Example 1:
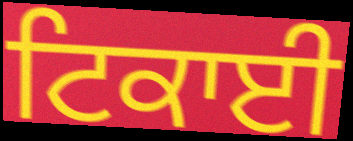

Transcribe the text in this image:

ਟਿਕਾਈ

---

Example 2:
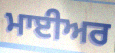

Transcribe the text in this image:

ਮਾਈਅਰ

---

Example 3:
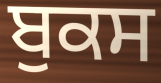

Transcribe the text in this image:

ਬੁਕਸ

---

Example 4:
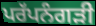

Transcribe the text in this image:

ਪਰੱਪਨੰਗੜੀ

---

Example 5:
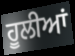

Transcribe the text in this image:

ਹੂਲੀਆਂ